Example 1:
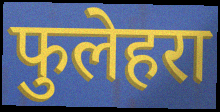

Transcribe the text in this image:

फुलेहरा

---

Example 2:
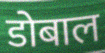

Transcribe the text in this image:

डोबाल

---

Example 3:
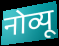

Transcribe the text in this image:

नोव्यू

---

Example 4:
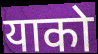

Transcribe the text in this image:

याको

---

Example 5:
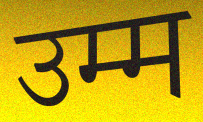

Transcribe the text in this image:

उम्म